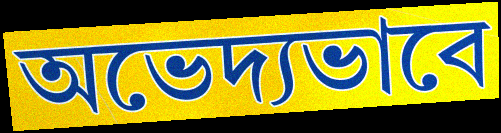
অভেদ্যভাবে